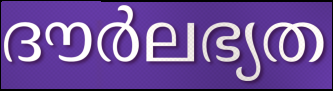
ദൗർലഭ്യത